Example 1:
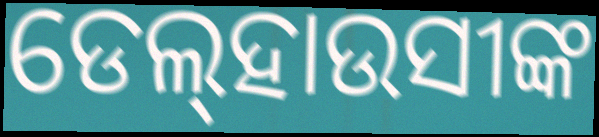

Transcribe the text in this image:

ଡେଲ୍‌ହାଉସୀଙ୍କ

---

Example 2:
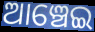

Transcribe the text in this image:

ଆଞ୍ଚେଇ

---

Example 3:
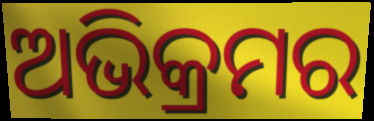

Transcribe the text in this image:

ଅଭିକ୍ରମର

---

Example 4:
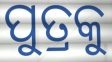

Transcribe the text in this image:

ପୁତ୍ରକୁ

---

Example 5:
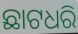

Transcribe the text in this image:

ଛାଟଧରି